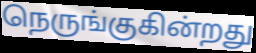
நெருங்குகின்றது